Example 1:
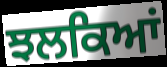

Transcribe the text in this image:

ਝਲਕਿਆਂ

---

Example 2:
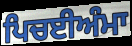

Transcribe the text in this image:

ਪਿਚਈਅੰਮਾ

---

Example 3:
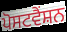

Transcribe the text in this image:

ਪੋਸਟਵੈਂਸ਼ਨ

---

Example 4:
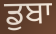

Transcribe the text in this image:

ਡੁਬਾ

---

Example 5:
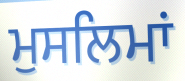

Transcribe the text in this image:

ਮੁਸਲਿਮਾਂ